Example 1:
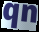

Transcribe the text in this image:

qn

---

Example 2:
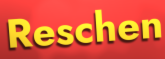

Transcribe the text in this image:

Reschen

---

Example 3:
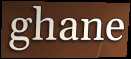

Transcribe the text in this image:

ghane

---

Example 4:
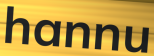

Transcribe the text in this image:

hannu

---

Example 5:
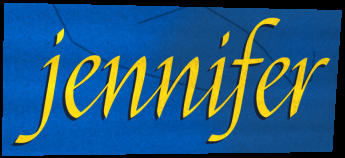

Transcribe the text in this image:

jennifer